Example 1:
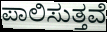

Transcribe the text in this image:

ಪಾಲಿಸುತ್ತವೆ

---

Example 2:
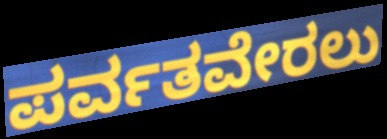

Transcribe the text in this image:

ಪರ್ವತವೇರಲು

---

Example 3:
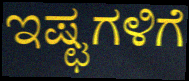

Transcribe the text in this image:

ಇಷ್ಟಗಳಿಗೆ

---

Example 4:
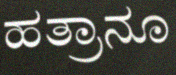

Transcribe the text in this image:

ಹತ್ರಾನೂ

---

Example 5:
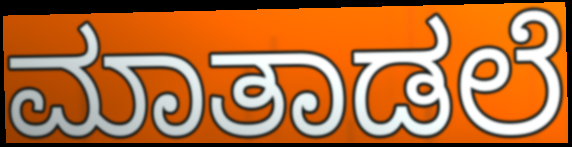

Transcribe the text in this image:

ಮಾತಾಡಲೆ